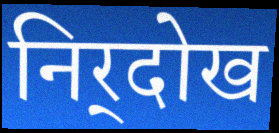
निर्दोख